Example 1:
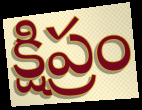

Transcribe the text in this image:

క్షిప్రం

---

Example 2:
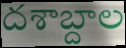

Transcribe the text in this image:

దశాబ్దాల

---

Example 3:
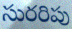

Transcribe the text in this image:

సురరిపు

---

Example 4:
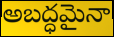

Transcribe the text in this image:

అబద్ధమైనా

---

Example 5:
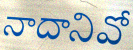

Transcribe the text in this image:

నాదానివో